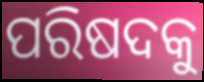
ପରିଷଦକୁ